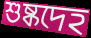
শুষ্কদেহ